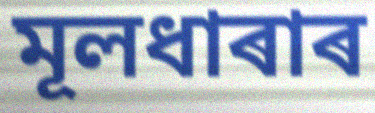
মূলধাৰাৰ